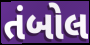
તંબોલ